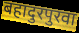
बहादुरपुरवा